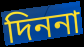
দিননা